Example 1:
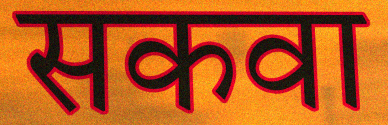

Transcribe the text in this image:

सकवा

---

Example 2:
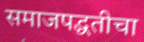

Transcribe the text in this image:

समाजपद्धतीचा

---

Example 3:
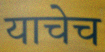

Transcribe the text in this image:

याचेच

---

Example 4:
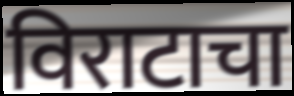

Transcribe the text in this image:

विराटाचा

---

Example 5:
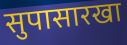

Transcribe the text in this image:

सुपासारखा